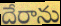
దేరాను